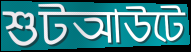
শুটআউটে